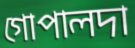
গোপালদা